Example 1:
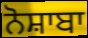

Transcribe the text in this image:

ਨੋਸ਼ਾਬਾ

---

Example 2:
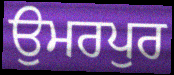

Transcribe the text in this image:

ਉਮਰਪੁਰ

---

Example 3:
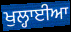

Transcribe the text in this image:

ਖੁਲ੍ਹਾਈਆ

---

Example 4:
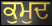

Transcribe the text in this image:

ਕੁਮੁਦ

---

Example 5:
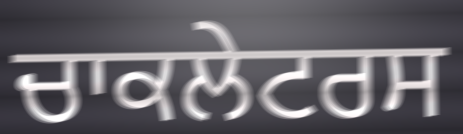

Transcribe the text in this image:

ਚਾਕਲੇਟਰਸ